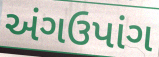
અંગઉપાંગ